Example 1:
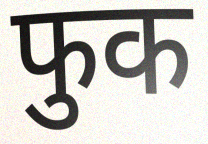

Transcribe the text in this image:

फुक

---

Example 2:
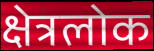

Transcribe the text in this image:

क्षेत्रलोक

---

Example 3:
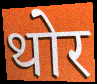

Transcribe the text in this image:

थोर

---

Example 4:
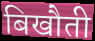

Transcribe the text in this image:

बिखौती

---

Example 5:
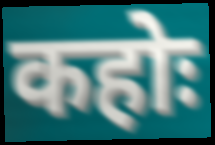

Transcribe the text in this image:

कहोः